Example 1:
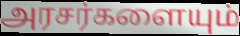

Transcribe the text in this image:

அரசர்களையும்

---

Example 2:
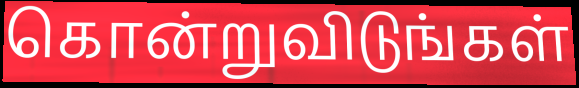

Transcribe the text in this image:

கொன்றுவிடுங்கள்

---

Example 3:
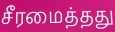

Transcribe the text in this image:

சீரமைத்தது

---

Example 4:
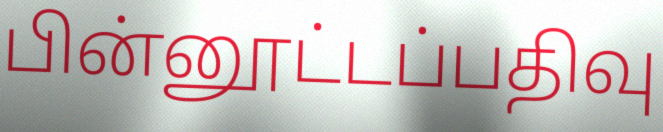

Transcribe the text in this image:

பின்னூட்டப்பதிவு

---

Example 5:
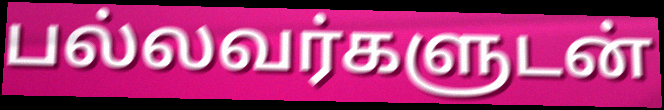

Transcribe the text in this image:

பல்லவர்களுடன்